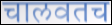
चालवतच